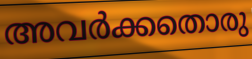
അവർക്കതൊരു